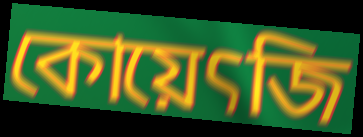
কোয়েৎজি